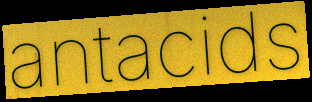
antacids